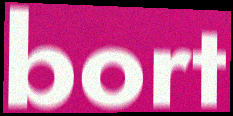
bort